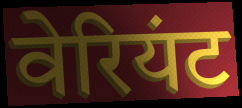
वेरियंट